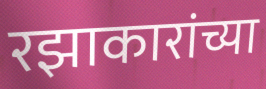
रझाकारांच्या